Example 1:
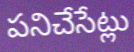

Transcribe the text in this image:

పనిచేసేట్లు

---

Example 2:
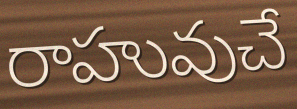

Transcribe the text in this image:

రాహువుచే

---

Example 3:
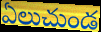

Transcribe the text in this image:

ఏలుచుండ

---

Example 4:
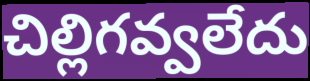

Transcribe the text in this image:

చిల్లిగవ్వలేదు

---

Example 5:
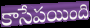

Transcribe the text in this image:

కాసేపయింది